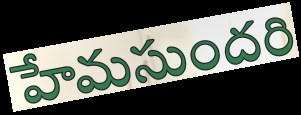
హేమసుందరి